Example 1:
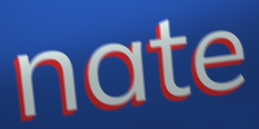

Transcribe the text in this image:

nate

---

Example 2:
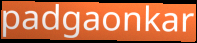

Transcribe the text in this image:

padgaonkar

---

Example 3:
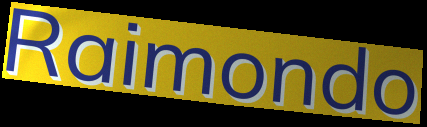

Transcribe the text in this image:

Raimondo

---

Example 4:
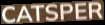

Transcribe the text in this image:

CATSPER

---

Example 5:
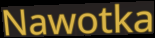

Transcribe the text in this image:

Nawotka